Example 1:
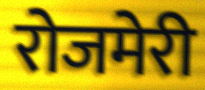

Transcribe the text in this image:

रोजमेरी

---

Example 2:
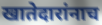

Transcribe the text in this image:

खातेदारांनाच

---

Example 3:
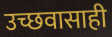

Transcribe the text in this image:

उच्छवासाही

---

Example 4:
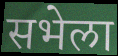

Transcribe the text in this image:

सभेला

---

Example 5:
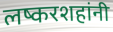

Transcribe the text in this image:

लष्करशहांनी